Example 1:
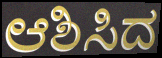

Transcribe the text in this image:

ಆಶಿಸಿದ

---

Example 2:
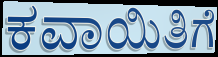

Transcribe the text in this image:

ಕವಾಯಿತಿಗೆ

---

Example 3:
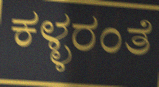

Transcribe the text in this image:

ಕಳ್ಳರಂತೆ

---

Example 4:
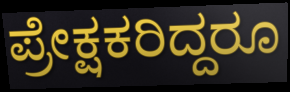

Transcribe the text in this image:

ಪ್ರೇಕ್ಷಕರಿದ್ದರೂ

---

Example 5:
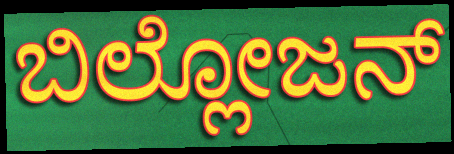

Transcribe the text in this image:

ಬಿಲ್ಲೋಜನ್